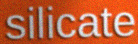
silicate